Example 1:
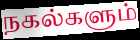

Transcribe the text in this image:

நகல்களும்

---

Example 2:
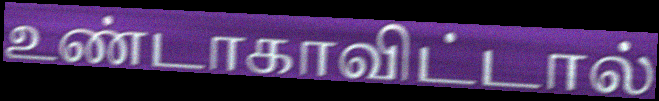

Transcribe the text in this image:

உண்டாகாவிட்டால்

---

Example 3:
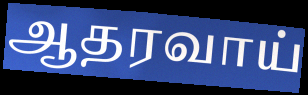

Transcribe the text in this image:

ஆதரவாய்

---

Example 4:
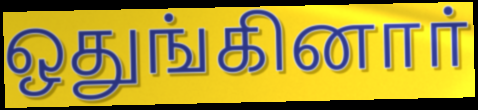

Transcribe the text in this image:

ஒதுங்கினார்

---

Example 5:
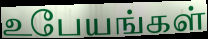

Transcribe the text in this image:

உபேயங்கள்